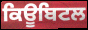
ਕਿਊਬਿਟਲ